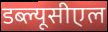
डब्ल्यूसीएल